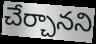
చేర్చానని